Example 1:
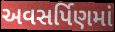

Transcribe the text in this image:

અવસર્પિણમાં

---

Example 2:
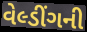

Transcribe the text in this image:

વેલ્ડીંગની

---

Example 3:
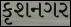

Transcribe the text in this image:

કૃશનગર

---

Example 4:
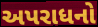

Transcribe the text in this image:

અપરાધનો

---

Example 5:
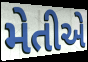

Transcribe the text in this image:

મેતીએ